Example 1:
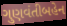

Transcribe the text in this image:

ગુણવંતીબહેન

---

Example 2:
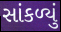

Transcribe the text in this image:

સાંકળ્યું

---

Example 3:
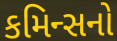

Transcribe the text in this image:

કમિન્સનો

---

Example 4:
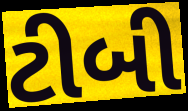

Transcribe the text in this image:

ટીબી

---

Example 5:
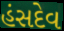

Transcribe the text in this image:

હંસદેવ